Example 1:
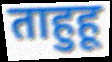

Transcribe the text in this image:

ताहुहू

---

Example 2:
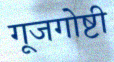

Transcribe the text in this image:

गूजगोष्टी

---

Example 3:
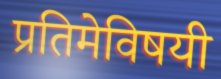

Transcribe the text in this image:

प्रतिमेविषयी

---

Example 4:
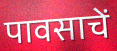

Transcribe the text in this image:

पावसाचें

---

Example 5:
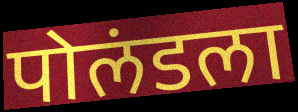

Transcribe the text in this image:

पोलंडला